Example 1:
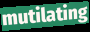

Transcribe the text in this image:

mutilating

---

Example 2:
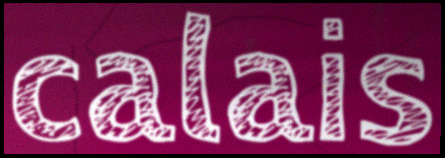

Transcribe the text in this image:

calais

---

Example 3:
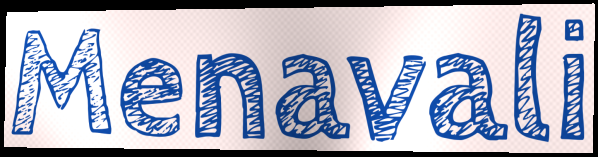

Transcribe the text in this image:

Menavali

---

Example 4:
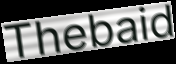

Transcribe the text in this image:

Thebaid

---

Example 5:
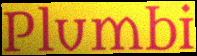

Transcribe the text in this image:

Plumbi